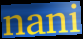
nani